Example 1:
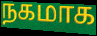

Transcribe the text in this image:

நகமாக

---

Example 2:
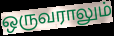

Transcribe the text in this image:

ஒருவராலும்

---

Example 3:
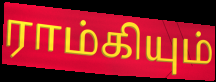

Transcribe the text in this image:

ராம்கியும்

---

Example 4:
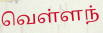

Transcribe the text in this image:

வெள்ளந்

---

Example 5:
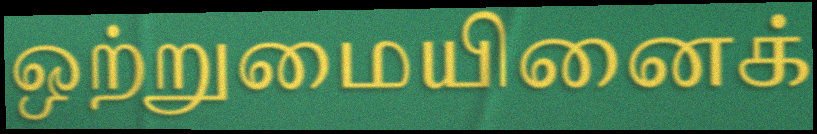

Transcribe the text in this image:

ஒற்றுமையினைக்